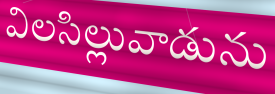
విలసిల్లువాడును